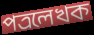
পত্রলেখক